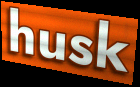
husk